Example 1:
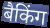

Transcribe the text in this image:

बैकिंग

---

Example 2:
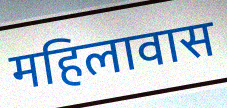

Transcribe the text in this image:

महिलावास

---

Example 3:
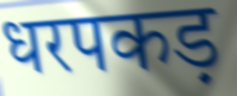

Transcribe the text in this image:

धरपकड़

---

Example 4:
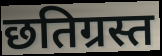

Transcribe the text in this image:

छतिग्रस्त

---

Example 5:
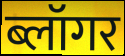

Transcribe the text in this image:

ब्लॉगर